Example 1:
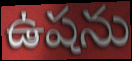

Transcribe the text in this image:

ఉషను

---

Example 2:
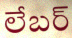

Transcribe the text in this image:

లేబర్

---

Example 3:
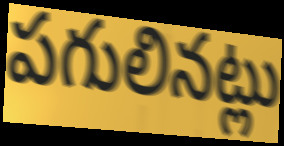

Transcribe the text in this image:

పగులినట్లు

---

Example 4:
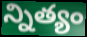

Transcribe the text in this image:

న్నిత్యం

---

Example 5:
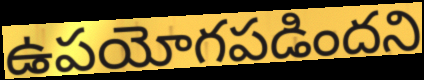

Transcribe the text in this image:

ఉపయోగపడిందని